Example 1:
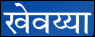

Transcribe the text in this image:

खेवय्या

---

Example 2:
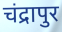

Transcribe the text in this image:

चंद्रापुर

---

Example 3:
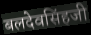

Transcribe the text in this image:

बलदेवसिंहजी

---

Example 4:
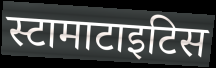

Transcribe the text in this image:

स्टामाटाइटिस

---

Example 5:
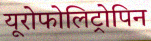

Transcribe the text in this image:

यूरोफोलिट्रोपिन